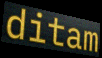
ditam